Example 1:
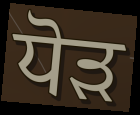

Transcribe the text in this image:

ਧੋੜ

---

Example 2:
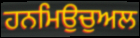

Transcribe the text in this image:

ਹਨਮਿਉਚੁਅਲ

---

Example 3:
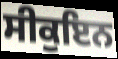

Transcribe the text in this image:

ਸੀਕੁਇਨ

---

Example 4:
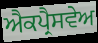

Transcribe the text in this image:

ਐਕਪ੍ਰੈਸਵੇਅ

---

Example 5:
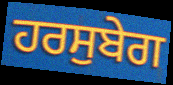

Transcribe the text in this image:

ਹਰਸੁਬੇਗ